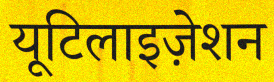
यूटिलाइज़ेशन